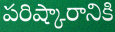
పరిష్కారానికి